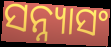
ସନ୍ନ୍ୟାସଂ